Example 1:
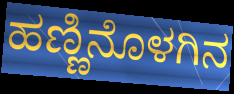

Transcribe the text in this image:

ಹಣ್ಣಿನೊಳಗಿನ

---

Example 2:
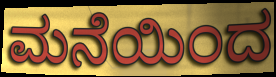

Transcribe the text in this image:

ಮನೆಯಿಂದ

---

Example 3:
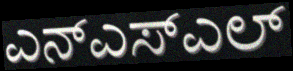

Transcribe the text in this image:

ಎನ್ಎಸ್ಎಲ್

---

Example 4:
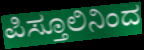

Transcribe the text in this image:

ಪಿಸ್ತೂಲಿನಿಂದ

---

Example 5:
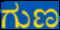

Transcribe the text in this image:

ಗುಣ